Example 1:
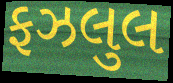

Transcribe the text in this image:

ફઝલુલ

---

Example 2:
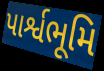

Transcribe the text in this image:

પાર્શ્વભૂમિ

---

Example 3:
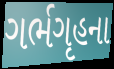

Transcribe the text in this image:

ગર્ભગૃહના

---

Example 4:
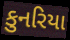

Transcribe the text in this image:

કુનરિયા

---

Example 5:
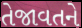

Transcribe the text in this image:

તેજાવતને